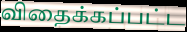
விதைக்கப்பட்ட